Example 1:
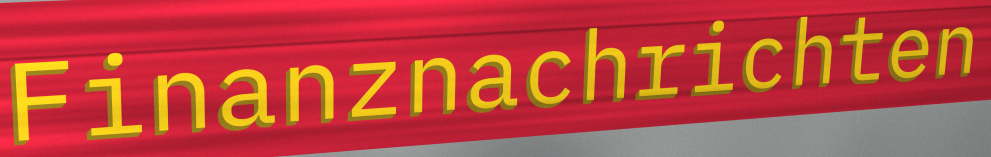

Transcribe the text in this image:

Finanznachrichten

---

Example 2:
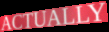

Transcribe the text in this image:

ACTUALLY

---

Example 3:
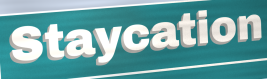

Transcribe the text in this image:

Staycation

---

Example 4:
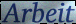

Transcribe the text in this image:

Arbeit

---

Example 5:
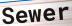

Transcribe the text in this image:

Sewer